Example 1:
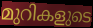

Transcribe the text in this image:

മുറികളുടെ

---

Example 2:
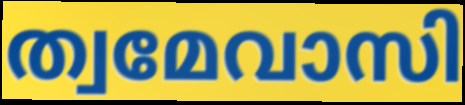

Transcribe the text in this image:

ത്വമേവാസി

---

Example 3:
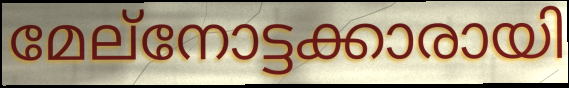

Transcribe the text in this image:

മേല്നോട്ടക്കാരായി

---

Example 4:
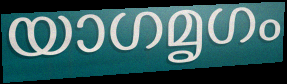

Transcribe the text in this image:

യാഗമൃഗം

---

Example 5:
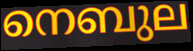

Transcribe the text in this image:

നെബുല